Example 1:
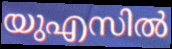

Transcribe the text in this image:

യുഎസിൽ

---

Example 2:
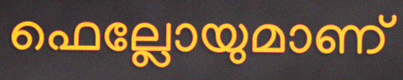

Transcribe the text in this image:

ഫെല്ലോയുമാണ്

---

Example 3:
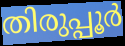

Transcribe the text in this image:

തിരുപ്പൂർ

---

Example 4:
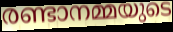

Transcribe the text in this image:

രണ്ടാനമ്മയുടെ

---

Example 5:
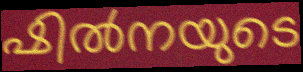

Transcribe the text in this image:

ഷിൽനയുടെ